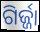
ଗିର୍ଜ୍ଜା